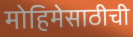
मोहिमेसाठीची